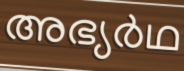
അഭ്യർഥ